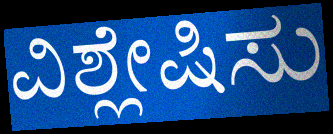
ವಿಶ್ಲೇಷಿಸು